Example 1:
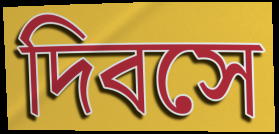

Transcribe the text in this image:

দিবসে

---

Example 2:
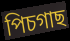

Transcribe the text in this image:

পিচগাছ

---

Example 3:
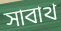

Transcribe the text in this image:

সাবাথ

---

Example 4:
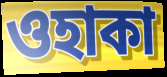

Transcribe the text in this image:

ওহাকা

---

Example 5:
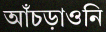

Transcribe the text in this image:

আঁচড়াওনি